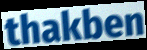
thakben